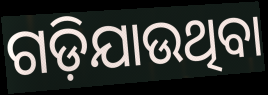
ଗଡ଼ିଯାଉଥିବା